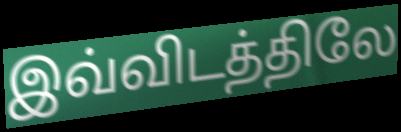
இவ்விடத்திலே